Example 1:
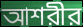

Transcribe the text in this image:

আশরীর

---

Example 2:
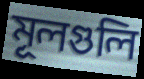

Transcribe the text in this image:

মূলগুলি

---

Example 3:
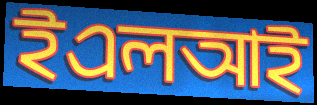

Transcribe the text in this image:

ইএলআই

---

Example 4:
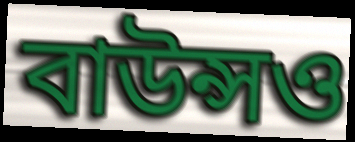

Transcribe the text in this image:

বাউন্সও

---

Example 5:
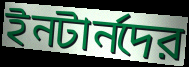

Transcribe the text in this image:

ইনটার্নদের